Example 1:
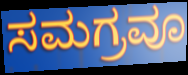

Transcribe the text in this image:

ಸಮಗ್ರವೂ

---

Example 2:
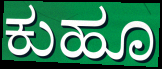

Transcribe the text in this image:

ಕುಹೂ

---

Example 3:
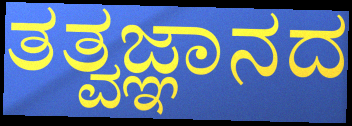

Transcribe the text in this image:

ತತ್ವಜ್ಞಾನದ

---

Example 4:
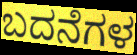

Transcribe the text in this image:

ಬದನೆಗಳ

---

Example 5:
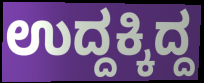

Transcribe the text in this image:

ಉದ್ದಕ್ಕಿದ್ದ